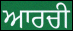
ਆਰਚੀ